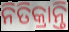
ନିତିକ୍ରାନ୍ତି